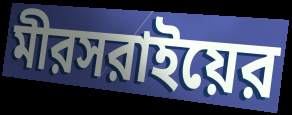
মীরসরাইয়ের